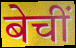
बेचीं